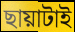
ছায়াটাই